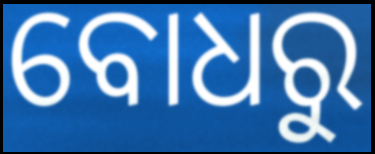
ବୋଧରୁ